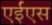
एईएस